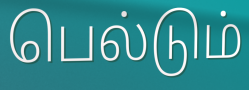
பெல்டும்